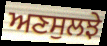
ਅਣਸੁਲਝੇ